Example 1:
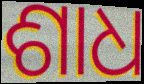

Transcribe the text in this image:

ଶାଧ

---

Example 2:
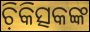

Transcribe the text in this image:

ଚ଼ିକିତ୍ସକଙ୍କ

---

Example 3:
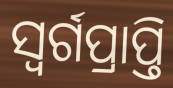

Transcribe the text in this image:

ସ୍ଵର୍ଗପ୍ରାପ୍ତି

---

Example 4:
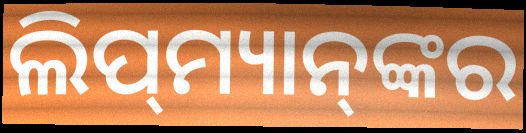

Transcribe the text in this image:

ଲିପ୍‌ମ୍ୟାନ୍‌ଙ୍କର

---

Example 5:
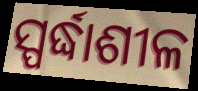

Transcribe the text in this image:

ସ୍ପର୍ଦ୍ଧାଶୀଳ